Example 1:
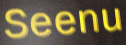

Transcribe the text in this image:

Seenu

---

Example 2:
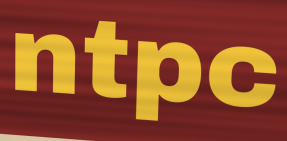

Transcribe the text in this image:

ntpc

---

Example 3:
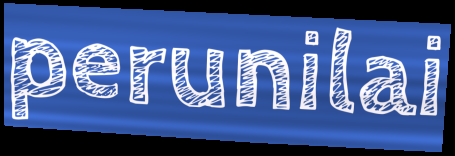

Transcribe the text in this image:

perunilai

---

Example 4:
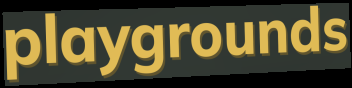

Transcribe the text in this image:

playgrounds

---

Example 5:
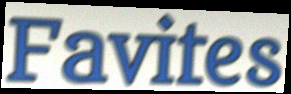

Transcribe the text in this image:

Favites